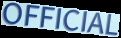
OFFICIAL